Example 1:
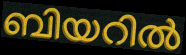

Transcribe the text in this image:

ബിയറിൽ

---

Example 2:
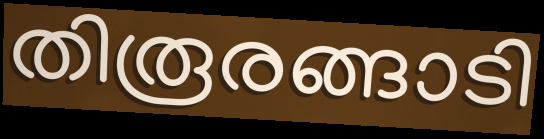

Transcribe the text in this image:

തിരൂരങ്ങാടി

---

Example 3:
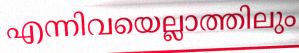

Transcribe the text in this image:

എന്നിവയെല്ലാത്തിലും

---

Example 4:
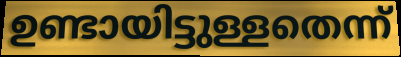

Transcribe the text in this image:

ഉണ്ടായിട്ടുള്ളതെന്ന്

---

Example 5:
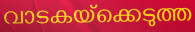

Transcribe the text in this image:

വാടകയ്‌ക്കെടുത്ത